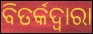
ବିତର୍କଦ୍ୱାରା